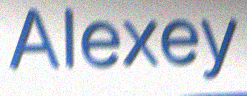
Alexey